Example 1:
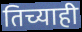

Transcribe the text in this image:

तिच्याही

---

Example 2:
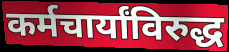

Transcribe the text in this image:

कर्मचार्यांविरुद्ध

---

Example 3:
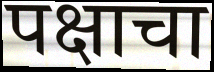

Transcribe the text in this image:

पक्षाचा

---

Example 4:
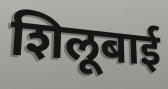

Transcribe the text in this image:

शिलूबाई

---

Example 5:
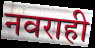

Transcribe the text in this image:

नवराही